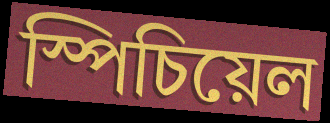
স্পিচিয়েল